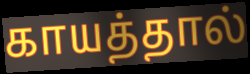
காயத்தால்